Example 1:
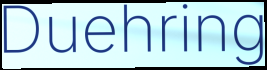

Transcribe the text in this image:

Duehring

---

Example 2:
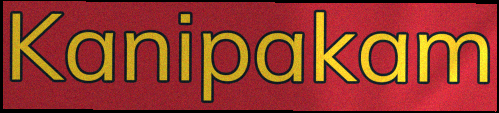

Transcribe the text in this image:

Kanipakam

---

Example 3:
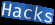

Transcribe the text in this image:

Hacks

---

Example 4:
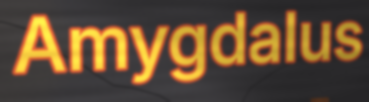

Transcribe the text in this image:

Amygdalus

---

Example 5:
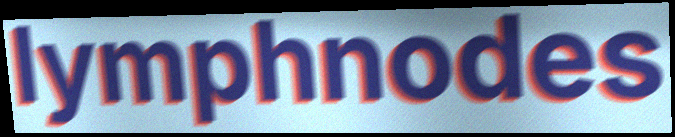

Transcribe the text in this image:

lymphnodes